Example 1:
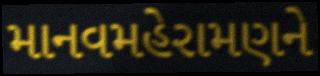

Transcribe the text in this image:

માનવમહેરામણને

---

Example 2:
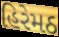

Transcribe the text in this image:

હિરેમઠ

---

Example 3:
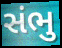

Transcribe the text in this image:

સંભુ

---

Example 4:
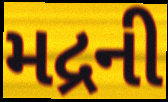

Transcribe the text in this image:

મદ્રની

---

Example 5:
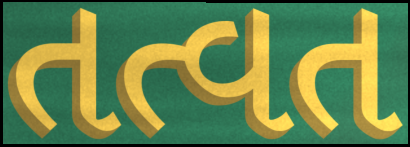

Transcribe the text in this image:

તત્વત